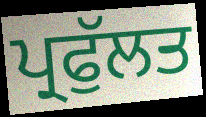
ਪ੍ਰਫੁੱਲਤ